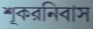
শূকরনিবাস